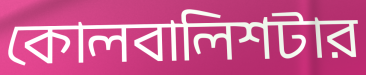
কোলবালিশটার